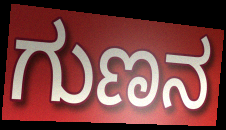
ಗುಣನ